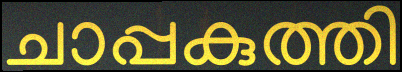
ചാപ്പകുത്തി